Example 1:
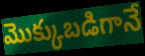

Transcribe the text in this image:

మొక్కుబడిగానే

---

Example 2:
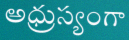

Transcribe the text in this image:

అధ్రుస్యంగా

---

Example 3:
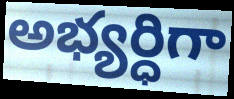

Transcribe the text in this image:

అభ్యర్ధిగా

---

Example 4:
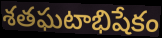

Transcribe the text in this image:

శతఘటాభిషేకం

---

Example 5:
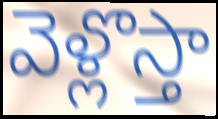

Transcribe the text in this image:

వెళ్లొస్తా